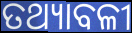
ତଥ୍ୟାବଳୀ